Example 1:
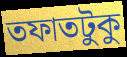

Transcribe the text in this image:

তফাতটুকু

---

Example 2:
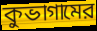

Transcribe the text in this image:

কুভাগামের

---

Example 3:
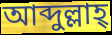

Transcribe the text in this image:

আব্দুল্লাহ্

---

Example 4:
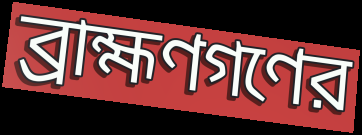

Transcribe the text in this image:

ব্রাহ্মণগণের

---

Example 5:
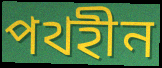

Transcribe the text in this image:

পথহীন